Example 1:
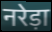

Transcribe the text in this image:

नरेड़ा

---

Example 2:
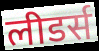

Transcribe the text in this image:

लीडर्स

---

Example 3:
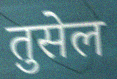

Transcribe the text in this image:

तुसेल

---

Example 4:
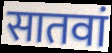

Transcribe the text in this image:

सातवां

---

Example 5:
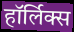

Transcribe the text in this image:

हॉर्लिक्स